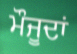
ਮੌਜੂਦਾਂ